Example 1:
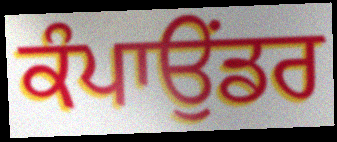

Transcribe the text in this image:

ਕੰਪਾਉਂਡਰ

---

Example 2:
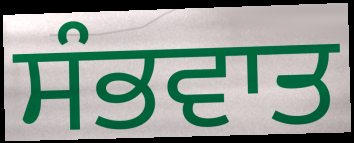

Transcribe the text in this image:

ਸੰਭਵਾਤ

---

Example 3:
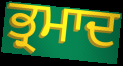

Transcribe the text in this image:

ਭ੍ਰਮਾਦ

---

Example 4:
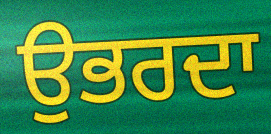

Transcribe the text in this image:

ਉਭਰਦਾ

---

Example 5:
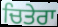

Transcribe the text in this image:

ਚਿਤੇਰਾ